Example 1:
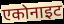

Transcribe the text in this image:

एकोनाइट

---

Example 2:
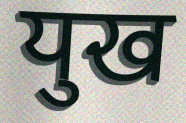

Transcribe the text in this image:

युख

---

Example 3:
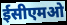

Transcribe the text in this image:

ईसीएमओ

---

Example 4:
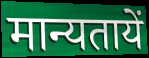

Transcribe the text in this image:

मान्यतायें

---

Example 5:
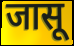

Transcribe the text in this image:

जासू